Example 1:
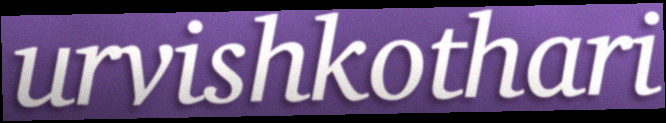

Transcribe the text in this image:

urvishkothari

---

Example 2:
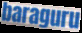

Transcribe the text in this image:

baraguru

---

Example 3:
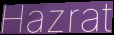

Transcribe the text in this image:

Hazrat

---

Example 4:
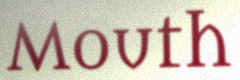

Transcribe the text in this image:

Mouth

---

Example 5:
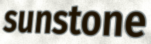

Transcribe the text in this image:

sunstone